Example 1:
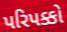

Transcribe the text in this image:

પરિપક્કો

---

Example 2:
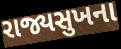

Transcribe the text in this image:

રાજ્યસુખના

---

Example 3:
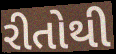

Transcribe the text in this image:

રીતોથી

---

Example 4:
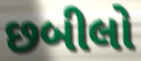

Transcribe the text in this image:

છબીલો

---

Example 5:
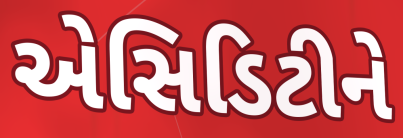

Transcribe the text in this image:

એસિડિટીને